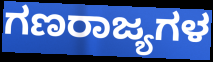
ಗಣರಾಜ್ಯಗಳ